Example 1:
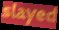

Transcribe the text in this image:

slayed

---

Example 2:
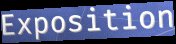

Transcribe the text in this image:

Exposition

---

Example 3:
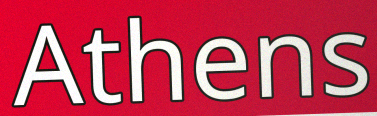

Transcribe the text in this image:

Athens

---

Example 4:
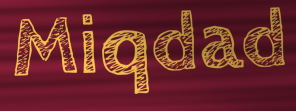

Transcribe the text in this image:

Miqdad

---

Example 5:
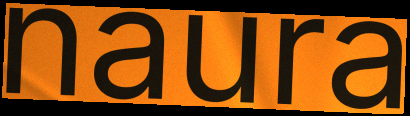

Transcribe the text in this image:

naura